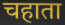
चहाता